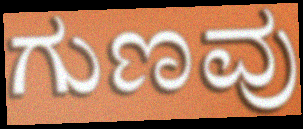
ಗುಣವು